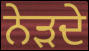
ਨੇੜਦੇ